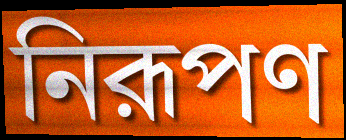
নিরূপণ